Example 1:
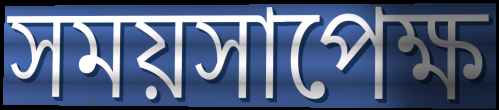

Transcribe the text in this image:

সময়সাপেক্ষ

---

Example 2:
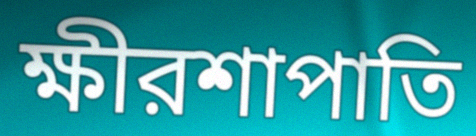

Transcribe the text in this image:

ক্ষীরশাপাতি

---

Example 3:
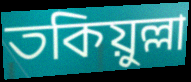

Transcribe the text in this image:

তকিয়ুল্লা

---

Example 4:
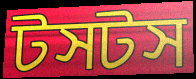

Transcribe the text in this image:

টসটস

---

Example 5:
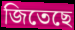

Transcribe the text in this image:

জিতেছে